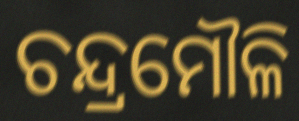
ଚନ୍ଦ୍ରମୌଳି